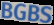
BGBS